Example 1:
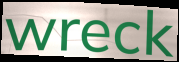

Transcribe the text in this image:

wreck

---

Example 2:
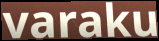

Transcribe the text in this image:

varaku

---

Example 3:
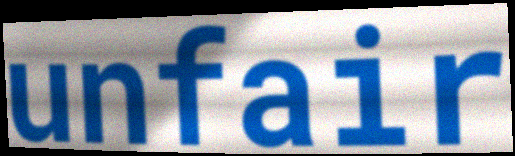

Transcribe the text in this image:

unfair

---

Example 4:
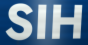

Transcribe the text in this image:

SIH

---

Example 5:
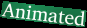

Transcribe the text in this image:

Animated